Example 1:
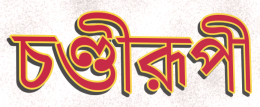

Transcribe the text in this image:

চণ্ডীরূপী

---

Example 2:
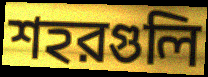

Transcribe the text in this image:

শহরগুলি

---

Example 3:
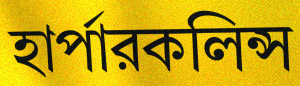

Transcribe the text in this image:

হার্পারকলিন্স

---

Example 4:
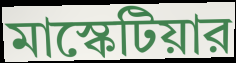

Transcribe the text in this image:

মাস্কেটিয়ার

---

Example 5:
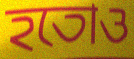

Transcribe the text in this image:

হতোও